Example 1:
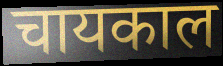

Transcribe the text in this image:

चायकाल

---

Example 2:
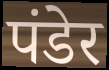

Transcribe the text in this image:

पंडेर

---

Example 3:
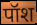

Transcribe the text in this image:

पॉश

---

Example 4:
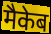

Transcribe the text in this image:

मैकेब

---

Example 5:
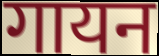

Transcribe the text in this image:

गायन